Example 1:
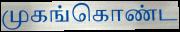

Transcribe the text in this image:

முகங்கொண்ட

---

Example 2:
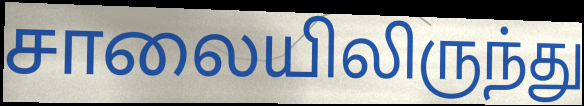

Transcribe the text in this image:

சாலையிலிருந்து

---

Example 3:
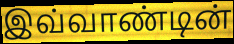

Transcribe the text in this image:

இவ்வாண்டின்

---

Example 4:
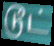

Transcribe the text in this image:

டூட்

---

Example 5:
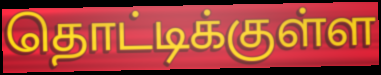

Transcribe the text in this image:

தொட்டிக்குள்ள